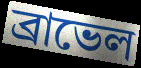
ব্রাভেল